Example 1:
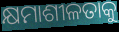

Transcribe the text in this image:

କ୍ଷମାଶୀଳତାକୁ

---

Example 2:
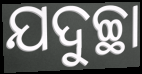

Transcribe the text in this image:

ଯଦୁଚ୍ଛା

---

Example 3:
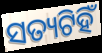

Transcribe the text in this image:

ସତ୍ୟଟିହିଁ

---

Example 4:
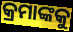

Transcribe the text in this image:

କ୍ରମାଙ୍କକୁ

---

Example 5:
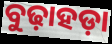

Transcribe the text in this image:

ବୁଢ଼ାହଡ଼ା